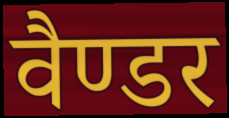
वैण्डर